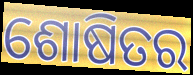
ଶୋଷିତର